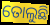
ତୋଲୁଛି